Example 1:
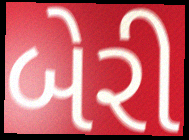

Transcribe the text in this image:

બેરી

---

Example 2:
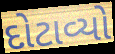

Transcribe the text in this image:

દોટાવ્યો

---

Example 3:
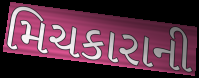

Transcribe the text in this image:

મિચકારાની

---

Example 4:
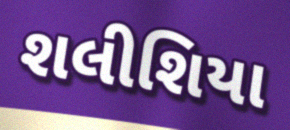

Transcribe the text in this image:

શલીશિયા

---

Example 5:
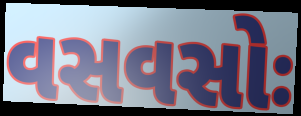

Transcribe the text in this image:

વસવસોઃ